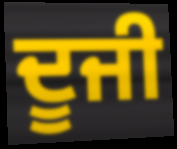
ਦੂਜੀ